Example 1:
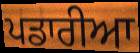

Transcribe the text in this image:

ਪਡਾਰੀਆ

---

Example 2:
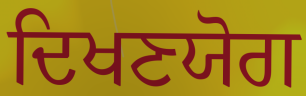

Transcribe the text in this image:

ਦਿਖਣਯੋਗ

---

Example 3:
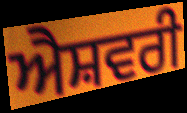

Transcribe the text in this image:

ਐਸ਼ਵਰੀ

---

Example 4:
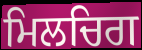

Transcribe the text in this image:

ਮਿਲਚਿਗ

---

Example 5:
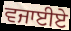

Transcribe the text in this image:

ਵਜਾਈਏ